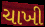
ચાખી